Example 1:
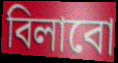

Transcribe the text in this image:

বিলাবো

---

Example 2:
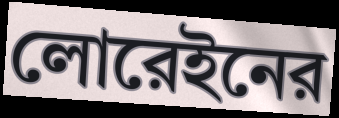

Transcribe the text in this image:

লোরেইনের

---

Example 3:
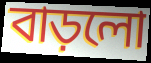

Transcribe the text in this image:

বাড়লো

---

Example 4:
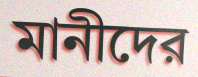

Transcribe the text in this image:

মানীদের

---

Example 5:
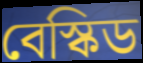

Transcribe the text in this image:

বেস্কিড